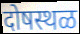
दोषस्थळ